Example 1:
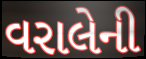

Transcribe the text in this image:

વરાલેની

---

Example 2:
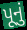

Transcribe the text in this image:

પૂનું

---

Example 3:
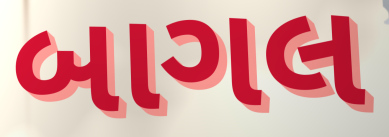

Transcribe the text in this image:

બાગલ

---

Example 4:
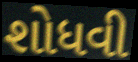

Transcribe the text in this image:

શોધવી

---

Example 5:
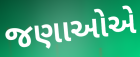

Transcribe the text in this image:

જણાઓએ